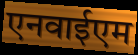
एनवाईएम